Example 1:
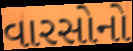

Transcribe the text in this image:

વારસોનો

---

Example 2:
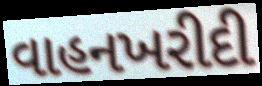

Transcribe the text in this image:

વાહનખરીદી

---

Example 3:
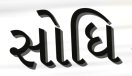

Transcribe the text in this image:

સોધિ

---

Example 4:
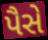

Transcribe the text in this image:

પૈસે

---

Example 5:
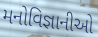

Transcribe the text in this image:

મનોવિજ્ઞાનીઓ